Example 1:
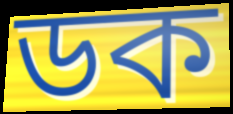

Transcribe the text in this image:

ডক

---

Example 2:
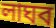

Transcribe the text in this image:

লাঘব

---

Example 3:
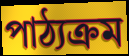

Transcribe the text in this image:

পাঠ্য়ক্ৰম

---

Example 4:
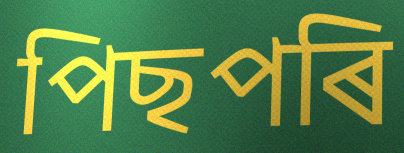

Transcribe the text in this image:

পিছপৰি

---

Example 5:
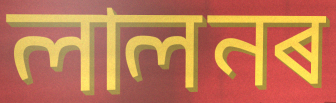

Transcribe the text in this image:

লালনৰ